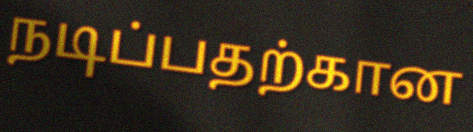
நடிப்பதற்கான